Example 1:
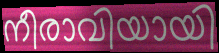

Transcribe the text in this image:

നീരാവിയായി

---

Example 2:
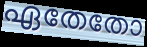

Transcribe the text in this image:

ഏതേതോ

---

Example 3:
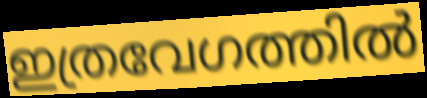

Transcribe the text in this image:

ഇത്രവേഗത്തിൽ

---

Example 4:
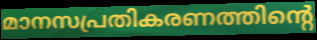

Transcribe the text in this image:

മാനസപ്രതികരണത്തിന്റെ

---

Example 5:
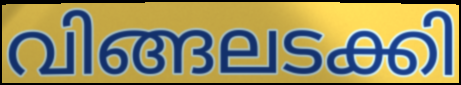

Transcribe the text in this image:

വിങ്ങലടക്കി